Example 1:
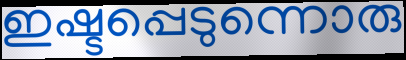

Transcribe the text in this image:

ഇഷ്ടപ്പെടുന്നൊരു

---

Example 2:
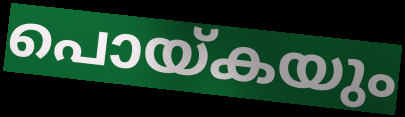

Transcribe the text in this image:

പൊയ്കയും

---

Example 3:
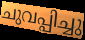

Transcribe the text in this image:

ചുവപ്പിച്ചു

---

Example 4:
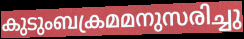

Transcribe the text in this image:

കുടുംബക്രമമനുസരിച്ചു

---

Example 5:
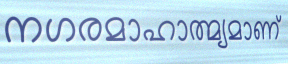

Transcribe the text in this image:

നഗരമാഹാത്മ്യമാണ്